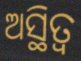
ଅସ୍ଥିତ୍ୱ